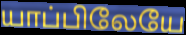
யாப்பிலேயே